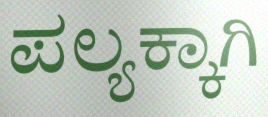
ಪಲ್ಯಕ್ಕಾಗಿ